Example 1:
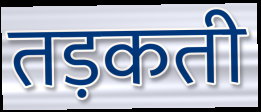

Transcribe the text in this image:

तड़कती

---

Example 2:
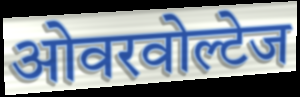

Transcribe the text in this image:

ओवरवोल्टेज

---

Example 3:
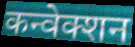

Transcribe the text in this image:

कन्वेक्शन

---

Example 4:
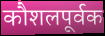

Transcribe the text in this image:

कौशलपूर्वक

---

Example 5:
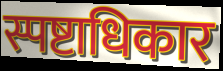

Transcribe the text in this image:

स्पष्टाधिकार